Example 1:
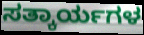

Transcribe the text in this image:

ಸತ್ಕಾರ್ಯಗಳ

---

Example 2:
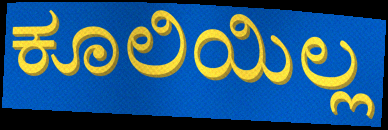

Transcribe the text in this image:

ಕೂಲಿಯಿಲ್ಲ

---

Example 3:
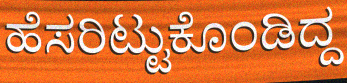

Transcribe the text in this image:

ಹೆಸರಿಟ್ಟುಕೊಂಡಿದ್ದ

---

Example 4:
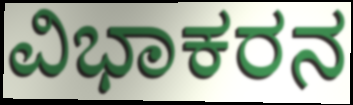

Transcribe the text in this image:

ವಿಭಾಕರನ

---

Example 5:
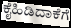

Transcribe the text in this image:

ಕೈಹಿಡಿದಾಕೆಗೆ